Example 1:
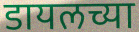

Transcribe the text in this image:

डायलच्या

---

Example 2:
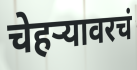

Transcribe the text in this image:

चेहर्‍यावरचं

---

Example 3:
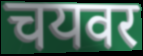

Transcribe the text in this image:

चयवर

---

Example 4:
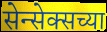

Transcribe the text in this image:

सेन्सेक्सच्या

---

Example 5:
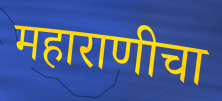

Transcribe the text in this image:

महाराणीचा